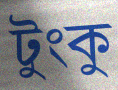
টুংকু